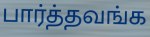
பார்த்தவங்க